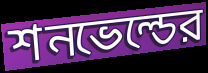
শনভেল্ডের